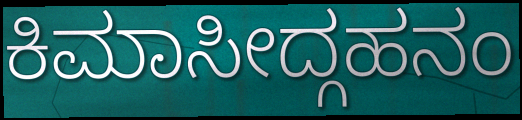
ಕಿಮಾಸೀದ್ಗಹನಂ